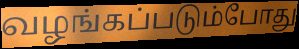
வழங்கப்படும்போது